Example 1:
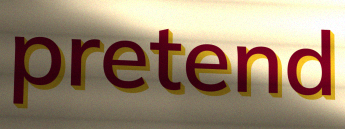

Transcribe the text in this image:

pretend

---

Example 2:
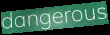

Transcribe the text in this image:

dangerous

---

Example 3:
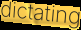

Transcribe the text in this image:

dictating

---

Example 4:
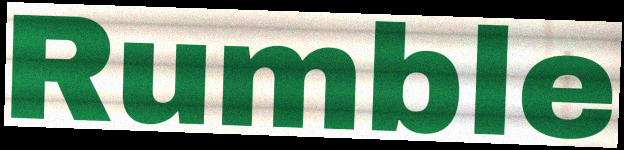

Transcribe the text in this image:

Rumble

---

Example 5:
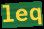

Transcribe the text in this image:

leq